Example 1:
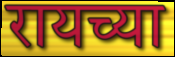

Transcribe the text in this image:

रायच्या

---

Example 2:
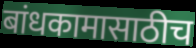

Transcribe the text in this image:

बांधकामासाठीच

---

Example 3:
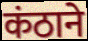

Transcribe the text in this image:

कंठाने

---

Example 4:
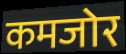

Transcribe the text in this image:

कमजोर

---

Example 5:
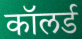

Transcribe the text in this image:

कॉलर्ड